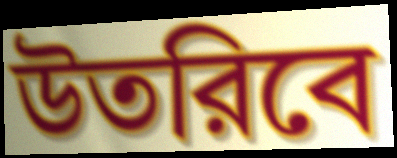
উতরিবে